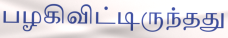
பழகிவிட்டிருந்தது